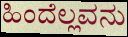
ಹಿಂದೆಲ್ಲವನು